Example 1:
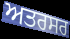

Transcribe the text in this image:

ਅਤਰਸਰ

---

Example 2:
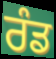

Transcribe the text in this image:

ਰੰਡ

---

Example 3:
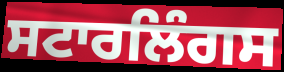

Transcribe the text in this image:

ਸਟਾਰਲਿੰਗਸ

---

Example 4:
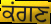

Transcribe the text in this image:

ਕਂਗਣ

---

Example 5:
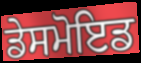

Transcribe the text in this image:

ਡੇਸਮੋਇਡ